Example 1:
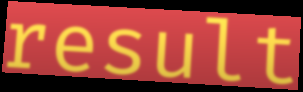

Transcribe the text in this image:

result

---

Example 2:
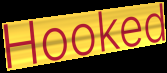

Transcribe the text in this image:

Hooked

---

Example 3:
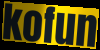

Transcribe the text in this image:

kofun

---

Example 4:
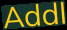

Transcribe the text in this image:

Addl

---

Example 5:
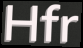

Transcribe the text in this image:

Hfr